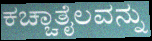
ಕಚ್ಚಾತೈಲವನ್ನು